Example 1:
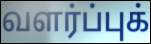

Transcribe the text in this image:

வளர்ப்புக்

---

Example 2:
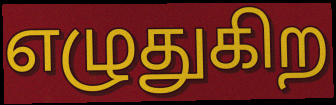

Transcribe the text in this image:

எழுதுகிற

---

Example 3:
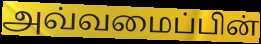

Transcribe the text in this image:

அவ்வமைப்பின்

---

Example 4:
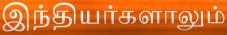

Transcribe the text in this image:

இந்தியர்களாலும்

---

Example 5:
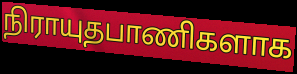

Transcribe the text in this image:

நிராயுதபாணிகளாக